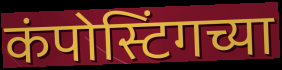
कंपोस्टिंगच्या